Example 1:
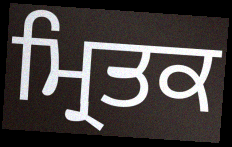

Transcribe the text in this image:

ਮ੍ਰਿਤਕ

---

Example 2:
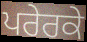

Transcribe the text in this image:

ਪਰੇਰਕੇ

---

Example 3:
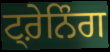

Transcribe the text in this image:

ਟ੍ਰ਼ੇਨਿੰਗ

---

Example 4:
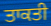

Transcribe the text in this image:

ਤਾਕਤੀ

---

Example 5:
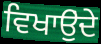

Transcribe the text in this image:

ਵਿਖਾਉੁਂਦੇ